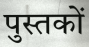
पुस्तकों